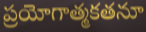
ప్రయోగాత్మకతనూ